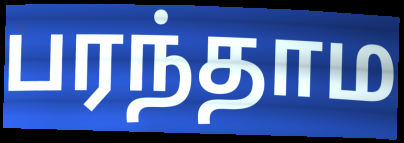
பரந்தாம